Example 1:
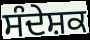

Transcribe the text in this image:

ਸੰਦੇਸ਼ਕ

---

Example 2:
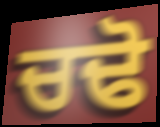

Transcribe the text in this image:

ਚਢੋ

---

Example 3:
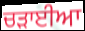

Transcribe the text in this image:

ਚੜਾਈਆ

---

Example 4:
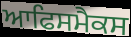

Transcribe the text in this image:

ਆਫਿਸਮੈਕਸ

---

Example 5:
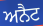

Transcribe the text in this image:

ਅਨੈਟ